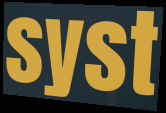
syst